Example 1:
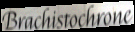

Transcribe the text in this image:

Brachistochrone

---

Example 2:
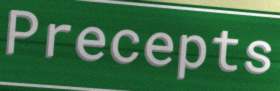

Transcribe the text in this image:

Precepts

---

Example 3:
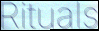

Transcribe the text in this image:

Rituals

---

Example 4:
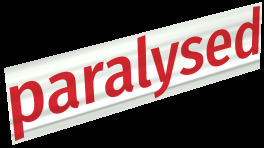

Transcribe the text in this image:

paralysed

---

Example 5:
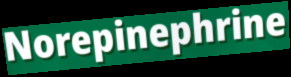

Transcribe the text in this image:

Norepinephrine